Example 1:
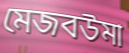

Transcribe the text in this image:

মেজবউমা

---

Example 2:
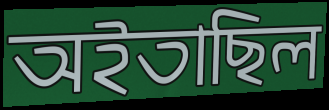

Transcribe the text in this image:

অইতাছিল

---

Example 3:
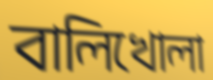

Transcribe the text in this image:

বালিখোলা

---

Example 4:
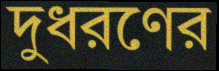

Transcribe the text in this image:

দুধরণের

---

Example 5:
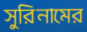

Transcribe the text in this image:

সুরিনামের